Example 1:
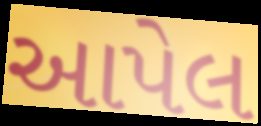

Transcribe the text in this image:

આપેલ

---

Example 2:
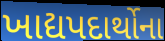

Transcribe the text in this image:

ખાદ્યપદાર્થોના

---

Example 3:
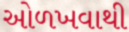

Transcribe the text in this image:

ઓળખવાથી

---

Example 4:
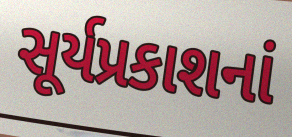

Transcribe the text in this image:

સૂર્યપ્રકાશનાં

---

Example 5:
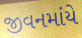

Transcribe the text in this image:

જીવનમાંયે